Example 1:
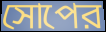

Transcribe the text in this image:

সোপের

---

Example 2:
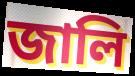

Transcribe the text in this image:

জালি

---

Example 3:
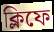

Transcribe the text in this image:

ক্লিফে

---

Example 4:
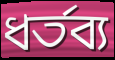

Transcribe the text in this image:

ধর্তব্য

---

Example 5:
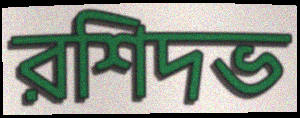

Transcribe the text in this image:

রশিদভ